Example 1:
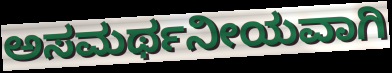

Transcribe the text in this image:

ಅಸಮರ್ಥನೀಯವಾಗಿ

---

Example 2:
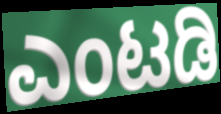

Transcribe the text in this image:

ಎಂಟಡಿ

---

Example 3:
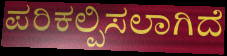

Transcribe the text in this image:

ಪರಿಕಲ್ಪಿಸಲಾಗಿದೆ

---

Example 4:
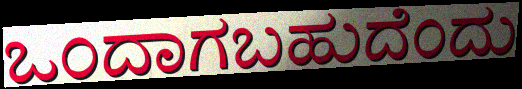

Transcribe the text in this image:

ಒಂದಾಗಬಹುದೆಂದು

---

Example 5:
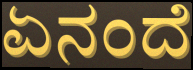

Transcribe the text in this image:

ಏನಂದೆ